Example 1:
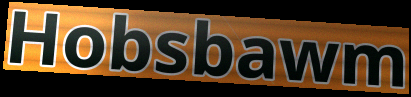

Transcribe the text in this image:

Hobsbawm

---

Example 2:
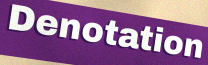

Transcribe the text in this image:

Denotation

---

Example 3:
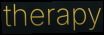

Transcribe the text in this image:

therapy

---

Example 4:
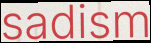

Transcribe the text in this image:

sadism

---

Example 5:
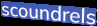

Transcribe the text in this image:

scoundrels